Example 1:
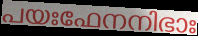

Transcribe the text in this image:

പയഃഫേനനിഭാഃ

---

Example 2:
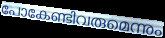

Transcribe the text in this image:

പോകേണ്ടിവരുമെന്നും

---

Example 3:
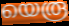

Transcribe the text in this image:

യെരൂ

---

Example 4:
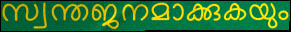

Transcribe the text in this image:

സ്വന്തജനമാക്കുകയും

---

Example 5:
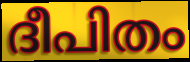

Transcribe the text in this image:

ദീപിതം